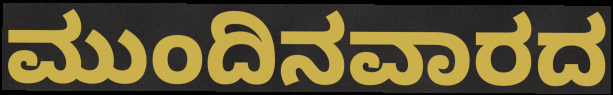
ಮುಂದಿನವಾರದ